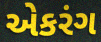
એકરંગ